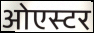
ओएस्टर